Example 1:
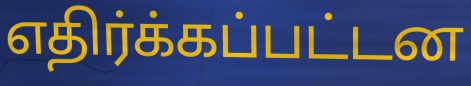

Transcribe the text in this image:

எதிர்க்கப்பட்டன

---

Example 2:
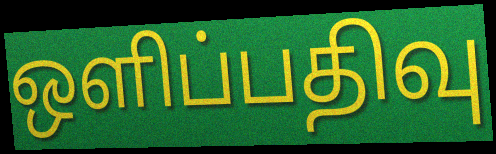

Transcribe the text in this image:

ஒளிப்பதிவு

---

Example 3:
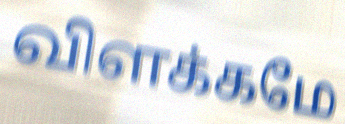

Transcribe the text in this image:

விளக்கமே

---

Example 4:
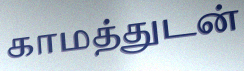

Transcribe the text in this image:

காமத்துடன்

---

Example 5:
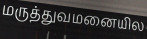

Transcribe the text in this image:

மருத்துவமனையில